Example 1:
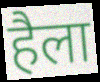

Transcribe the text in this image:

हैला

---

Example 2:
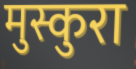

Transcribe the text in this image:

मुस्कुरा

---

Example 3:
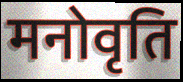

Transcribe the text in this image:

मनोवृति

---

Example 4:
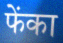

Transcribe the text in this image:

फेंका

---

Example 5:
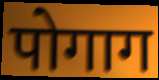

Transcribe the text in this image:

पोगाग